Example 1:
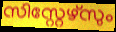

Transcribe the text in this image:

സിസ്റ്റേഴ്സും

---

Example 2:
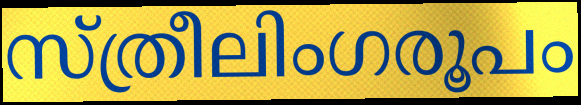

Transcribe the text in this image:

സ്ത്രീലിംഗരൂപം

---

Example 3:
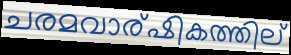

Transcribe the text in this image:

ചരമവാര്ഷികത്തില്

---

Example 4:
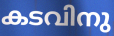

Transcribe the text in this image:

കടവിനു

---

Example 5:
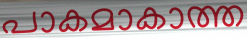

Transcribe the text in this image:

പാകമാകാത്ത